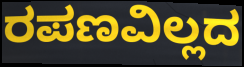
ರಪಣವಿಲ್ಲದ